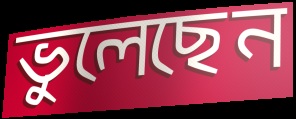
ভুলেছেন